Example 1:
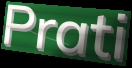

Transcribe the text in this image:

Prati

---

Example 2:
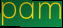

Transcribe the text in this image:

pam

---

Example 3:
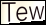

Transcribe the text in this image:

Tew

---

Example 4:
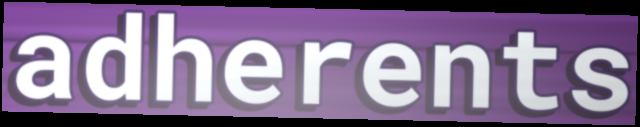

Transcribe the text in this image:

adherents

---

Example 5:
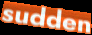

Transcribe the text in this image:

sudden